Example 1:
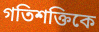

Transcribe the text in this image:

গতিশক্তিকে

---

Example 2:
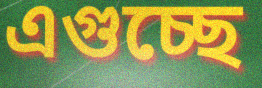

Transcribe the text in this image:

এগুচ্ছে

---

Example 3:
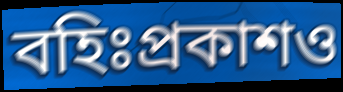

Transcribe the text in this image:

বহিঃপ্রকাশও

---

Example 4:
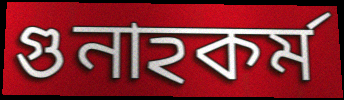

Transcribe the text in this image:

গুনাহকর্ম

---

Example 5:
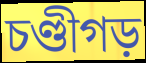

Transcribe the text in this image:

চণ্ডীগড়